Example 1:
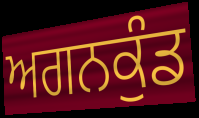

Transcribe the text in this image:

ਅਗਨਕੁੰਡ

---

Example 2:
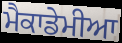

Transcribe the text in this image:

ਮੈਕਾਡੇਮੀਆ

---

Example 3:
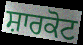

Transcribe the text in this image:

ਸ਼ਾਰਕੋਟ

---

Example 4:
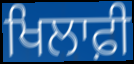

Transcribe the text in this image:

ਖਿਲਾਫ਼ੀ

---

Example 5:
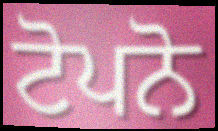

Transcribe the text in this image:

ਟੋਪਨੋ